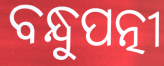
ବନ୍ଧୁପତ୍ନୀ